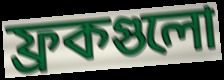
ফ্রকগুলো